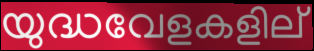
യുദ്ധവേളകളില്